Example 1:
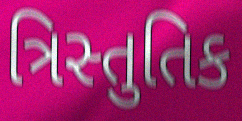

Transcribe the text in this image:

ત્રિસ્તુતિક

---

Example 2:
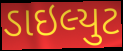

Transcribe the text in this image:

ડાઇલ્યુટ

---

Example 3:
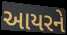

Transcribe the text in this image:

આયરને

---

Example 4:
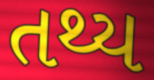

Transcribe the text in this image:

તથ્ય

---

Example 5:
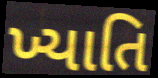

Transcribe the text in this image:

ખ્યાતિ